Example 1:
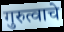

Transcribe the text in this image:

गुरुत्वाचे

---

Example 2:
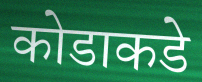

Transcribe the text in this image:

कोडाकडे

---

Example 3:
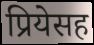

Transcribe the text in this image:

प्रियेसह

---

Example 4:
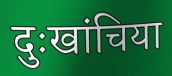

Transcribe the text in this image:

दुःखांचिया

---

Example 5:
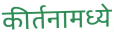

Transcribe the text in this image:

कीर्तनामध्ये